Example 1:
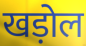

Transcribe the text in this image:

खड़ोल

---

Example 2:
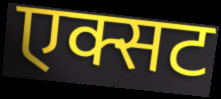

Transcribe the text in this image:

एक्सट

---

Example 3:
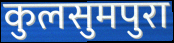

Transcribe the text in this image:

कुलसुमपुरा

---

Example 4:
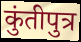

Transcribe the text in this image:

कुंतीपुत्र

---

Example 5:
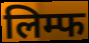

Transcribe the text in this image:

लिम्फ